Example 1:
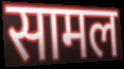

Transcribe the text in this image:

सामल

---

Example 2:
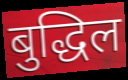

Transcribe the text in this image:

बुद्धिल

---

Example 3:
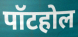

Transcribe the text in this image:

पॉटहोल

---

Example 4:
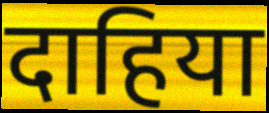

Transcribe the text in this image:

दाहिया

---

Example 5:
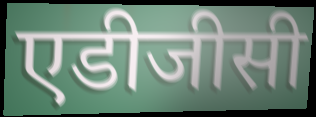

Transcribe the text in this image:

एडीजीसी